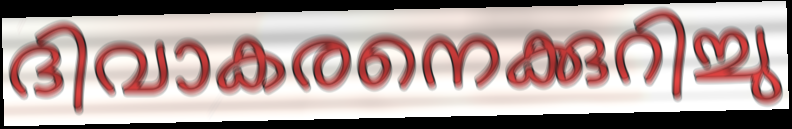
ദിവാകരനെക്കുറിച്ചു